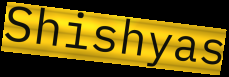
Shishyas